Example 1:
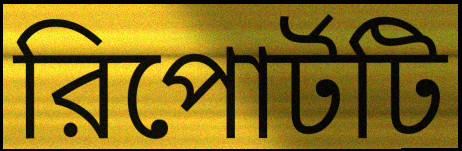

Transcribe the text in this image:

রিপোর্টটি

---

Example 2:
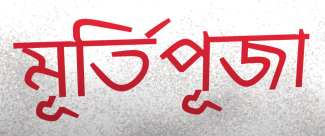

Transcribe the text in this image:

মূর্তিপূজা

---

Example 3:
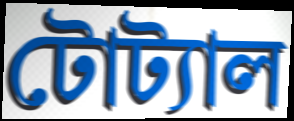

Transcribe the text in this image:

টোট্যাল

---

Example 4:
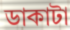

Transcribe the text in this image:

ডাকাটা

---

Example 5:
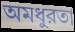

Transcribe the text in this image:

অমধুরতা